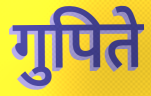
गुपिते